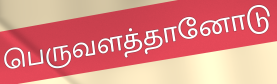
பெருவளத்தானோடு